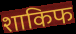
शाकिफ